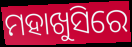
ମହାଖୁସିରେ